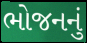
ભોજનનું